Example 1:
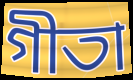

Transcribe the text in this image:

গীতা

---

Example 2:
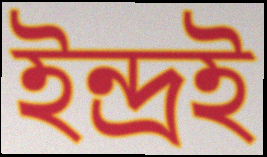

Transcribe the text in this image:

ইন্দ্ৰই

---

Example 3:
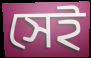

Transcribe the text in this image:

সেই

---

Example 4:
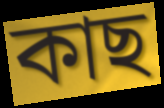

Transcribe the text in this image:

কাছ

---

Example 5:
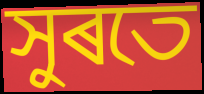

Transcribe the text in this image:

সুৰতে